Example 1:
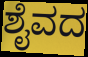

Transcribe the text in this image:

ಶೈವದ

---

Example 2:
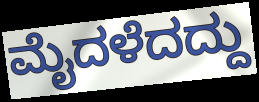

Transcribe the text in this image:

ಮೈದಳೆದದ್ದು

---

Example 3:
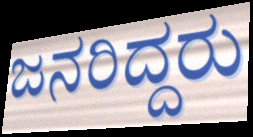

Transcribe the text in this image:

ಜನರಿದ್ದರು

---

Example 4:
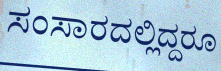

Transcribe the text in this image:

ಸಂಸಾರದಲ್ಲಿದ್ದರೂ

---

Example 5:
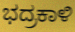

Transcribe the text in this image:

ಭದ್ರಕಾಳಿ